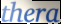
thera